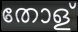
തോള്